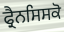
ਫ੍ਰੈਨਸਿਸਕੋ